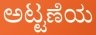
ಅಟ್ಟಣೆಯ